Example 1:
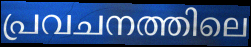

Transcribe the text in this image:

പ്രവചനത്തിലെ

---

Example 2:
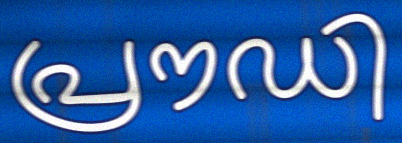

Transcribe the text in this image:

പ്രൗഡി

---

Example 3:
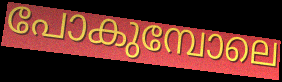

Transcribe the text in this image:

പോകുമ്പോലെ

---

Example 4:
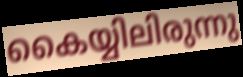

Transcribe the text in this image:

കൈയ്യിലിരുന്നു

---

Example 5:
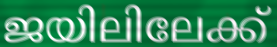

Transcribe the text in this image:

ജയിലിലേക്ക്